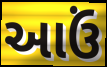
આઉં